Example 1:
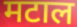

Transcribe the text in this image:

मटाल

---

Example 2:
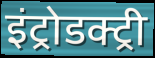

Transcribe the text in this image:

इंट्रोडक्ट्री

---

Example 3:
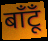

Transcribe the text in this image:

बाँटूँ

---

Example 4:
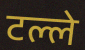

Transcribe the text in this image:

टल्ले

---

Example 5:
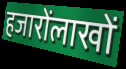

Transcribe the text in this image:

हजारोंलाखों